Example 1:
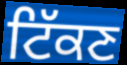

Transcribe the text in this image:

ਟਿੱਕਣ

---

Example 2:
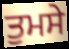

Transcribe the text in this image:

ਤੁਮਸੇ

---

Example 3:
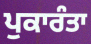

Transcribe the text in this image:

ਪੁਕਾਰੰਤਾ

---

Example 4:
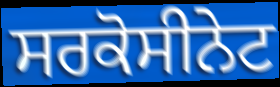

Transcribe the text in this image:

ਸਰਕੋਸੀਨੇਟ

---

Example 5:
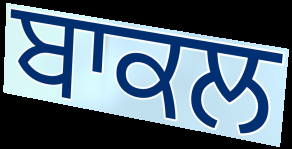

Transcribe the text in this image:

ਬਾਕਲ